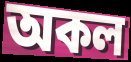
অকল